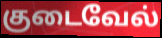
குடைவேல்